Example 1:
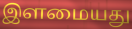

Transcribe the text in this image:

இளமையது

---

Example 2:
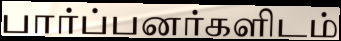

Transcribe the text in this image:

பார்ப்பனர்களிடம்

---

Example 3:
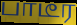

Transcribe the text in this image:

பாடீர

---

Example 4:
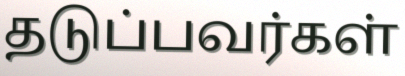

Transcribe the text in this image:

தடுப்பவர்கள்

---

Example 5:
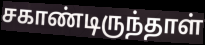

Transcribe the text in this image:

சகாண்டிருந்தாள்